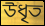
উধৃত